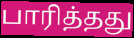
பாரித்தது